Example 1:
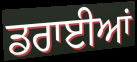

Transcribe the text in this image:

ਡਰਾਈਆਂ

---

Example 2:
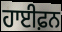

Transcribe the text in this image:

ਹਾਈਫ਼ਨ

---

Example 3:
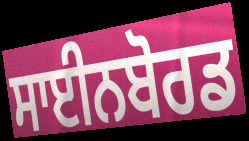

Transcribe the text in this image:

ਸਾਈਨਬੋਰਡ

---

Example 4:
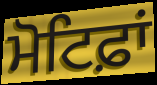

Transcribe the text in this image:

ਮੋਟਿਫ਼ਾਂ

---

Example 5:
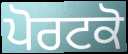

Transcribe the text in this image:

ਪੋਰਟਕੋ